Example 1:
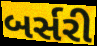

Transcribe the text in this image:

બર્સરી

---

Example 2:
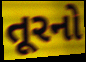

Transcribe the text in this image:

તૂરનો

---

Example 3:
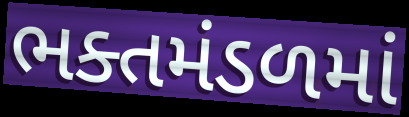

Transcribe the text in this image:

ભક્તમંડળમાં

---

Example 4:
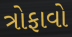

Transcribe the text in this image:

ત્રોફાવો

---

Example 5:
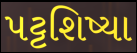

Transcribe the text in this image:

પટ્ટશિષ્યા